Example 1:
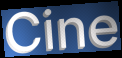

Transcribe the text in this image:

Cine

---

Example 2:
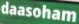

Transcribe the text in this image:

daasoham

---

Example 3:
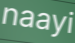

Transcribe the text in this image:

naayi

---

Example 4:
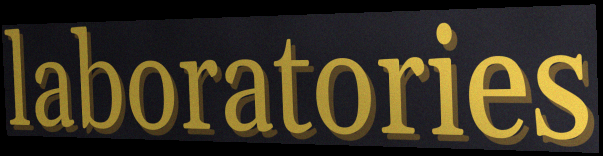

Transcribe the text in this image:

laboratories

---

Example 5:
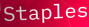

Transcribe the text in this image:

Staples